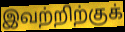
இவற்றிற்குக்